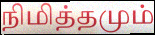
நிமித்தமும்